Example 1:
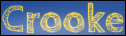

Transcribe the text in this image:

Crooke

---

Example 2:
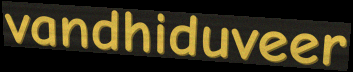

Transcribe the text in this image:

vandhiduveer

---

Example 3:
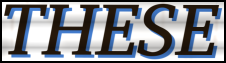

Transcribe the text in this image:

THESE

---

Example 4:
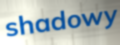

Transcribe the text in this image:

shadowy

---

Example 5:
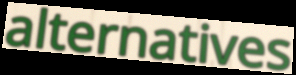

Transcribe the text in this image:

alternatives